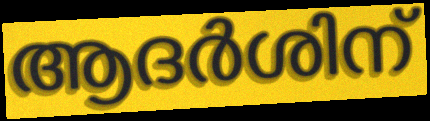
ആദർശിന്